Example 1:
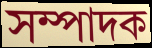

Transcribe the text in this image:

সম্পাদক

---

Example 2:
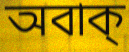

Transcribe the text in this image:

অবাক্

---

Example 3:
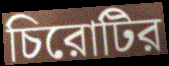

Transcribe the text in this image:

চিরোটির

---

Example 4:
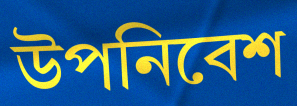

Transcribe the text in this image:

উপনিবেশ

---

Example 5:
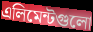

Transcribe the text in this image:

এলিমেন্টগুলো